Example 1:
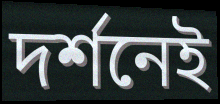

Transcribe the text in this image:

দর্শনেই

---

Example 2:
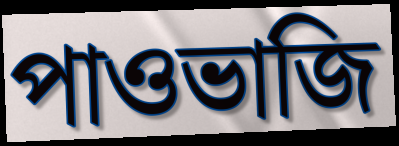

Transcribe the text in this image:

পাওভাজি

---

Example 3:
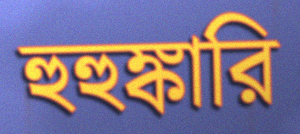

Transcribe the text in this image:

হুহুঙ্কারি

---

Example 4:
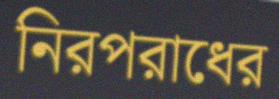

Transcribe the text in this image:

নিরপরাধের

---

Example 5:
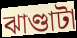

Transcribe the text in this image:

ঝাণ্ডাটা